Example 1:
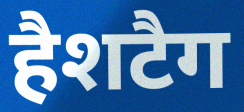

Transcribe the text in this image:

हैशटैग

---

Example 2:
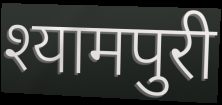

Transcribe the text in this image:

श्यामपुरी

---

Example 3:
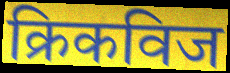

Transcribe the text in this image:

क्रिकविज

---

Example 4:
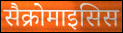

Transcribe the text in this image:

सैक्रोमाइसिस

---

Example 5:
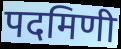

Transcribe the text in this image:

पदमिणी